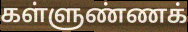
கள்ளுண்ணக்